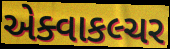
એક્વાકલ્ચર